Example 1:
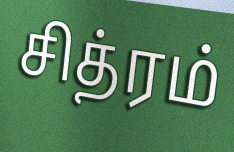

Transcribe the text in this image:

சித்ரம்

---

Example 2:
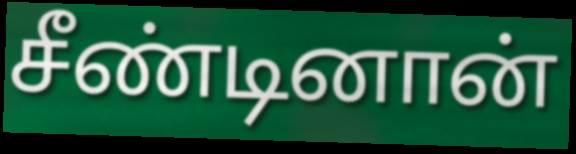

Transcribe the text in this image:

சீண்டினான்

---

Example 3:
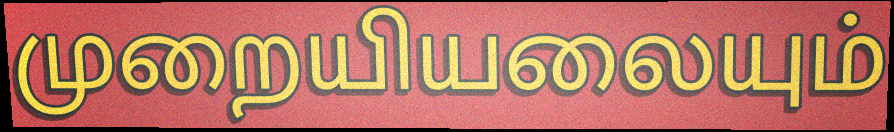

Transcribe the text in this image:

முறையியலையும்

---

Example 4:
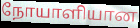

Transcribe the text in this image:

நோயாளியான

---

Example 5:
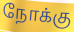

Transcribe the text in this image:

நோக்கு